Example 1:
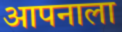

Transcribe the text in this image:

आपनाला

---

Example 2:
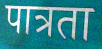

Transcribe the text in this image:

पात्रता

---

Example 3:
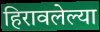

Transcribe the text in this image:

हिरावलेल्या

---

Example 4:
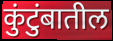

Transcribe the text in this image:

कुंटुंबातील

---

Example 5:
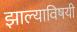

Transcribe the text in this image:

झाल्याविषयी